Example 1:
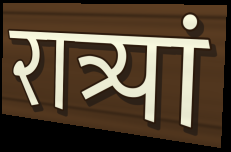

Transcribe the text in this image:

रात्र्यां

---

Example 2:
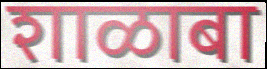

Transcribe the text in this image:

शाळाबा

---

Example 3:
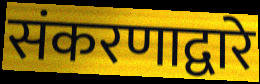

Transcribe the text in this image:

संकरणाद्वारे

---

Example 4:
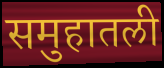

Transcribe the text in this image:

समुहातली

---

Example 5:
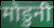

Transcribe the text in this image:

मोडुनी